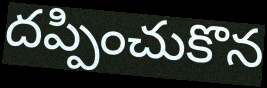
దప్పించుకొన